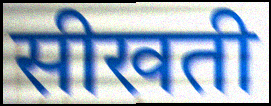
सीखती